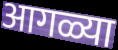
आगळ्या